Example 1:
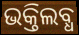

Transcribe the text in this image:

ଭକ୍ତିଲବ୍ଧ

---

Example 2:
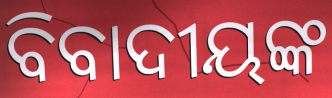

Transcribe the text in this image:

ବିବାଦୀୟଙ୍କ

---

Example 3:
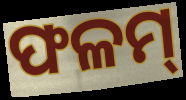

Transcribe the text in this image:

ଫଳମ୍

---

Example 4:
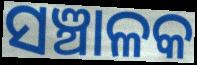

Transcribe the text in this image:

ସଞ୍ଚାଳକ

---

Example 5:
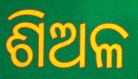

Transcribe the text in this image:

ଶିଅଳ